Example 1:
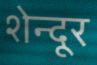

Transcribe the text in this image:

शेन्दूर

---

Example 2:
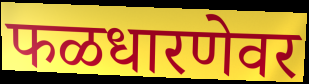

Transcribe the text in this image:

फळधारणेवर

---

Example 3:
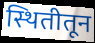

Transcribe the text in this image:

स्थितीतून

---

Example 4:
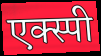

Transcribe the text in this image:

एक्स्पी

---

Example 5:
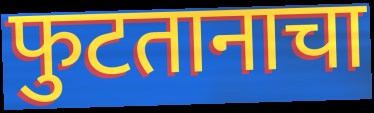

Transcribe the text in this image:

फुटतानाचा